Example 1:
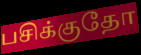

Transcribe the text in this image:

பசிக்குதோ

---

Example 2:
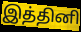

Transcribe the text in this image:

இத்தினி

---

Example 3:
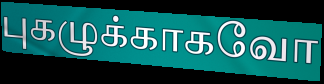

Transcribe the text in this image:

புகழுக்காகவோ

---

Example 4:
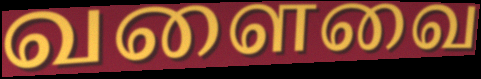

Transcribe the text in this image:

வளைவை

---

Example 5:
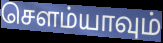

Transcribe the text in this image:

சௌம்யாவும்